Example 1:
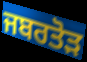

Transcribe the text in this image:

ਜਬਰਤੋੜ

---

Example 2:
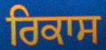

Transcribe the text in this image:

ਰਿਕਾਸ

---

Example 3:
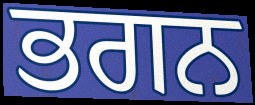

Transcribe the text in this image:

ਭਗਨ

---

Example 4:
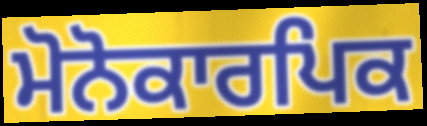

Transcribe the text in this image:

ਮੋਨੋਕਾਰਪਿਕ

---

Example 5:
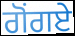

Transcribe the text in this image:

ਗੋਂਗਏ